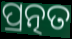
ପ୍ରତ୍ନତ